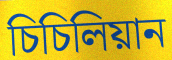
চিচিলিয়ান